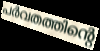
പർവതത്തിന്റെ